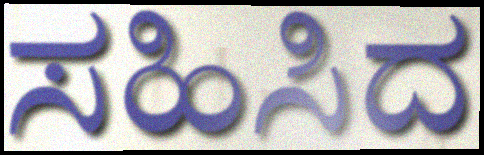
ಸಹಿಸಿದ